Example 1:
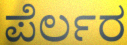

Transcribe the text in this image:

ಪೆರ್ಲರ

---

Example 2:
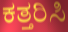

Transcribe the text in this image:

ಕತ್ತರಿಸಿ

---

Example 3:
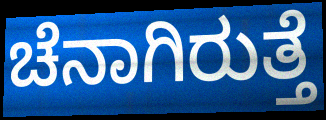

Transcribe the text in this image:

ಚೆನಾಗಿರುತ್ತೆ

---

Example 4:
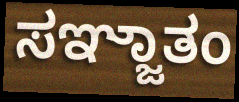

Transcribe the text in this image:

ಸಞ್ಜಾತಂ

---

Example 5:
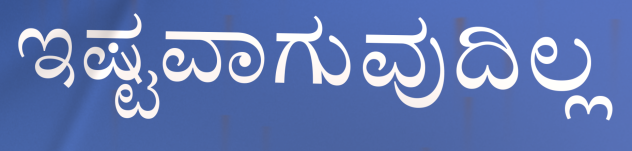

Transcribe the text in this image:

ಇಷ್ಟವಾಗುವುದಿಲ್ಲ